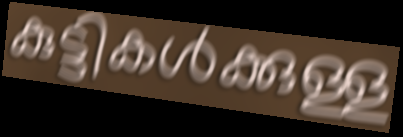
കുട്ടികൾക്കുള്ള